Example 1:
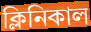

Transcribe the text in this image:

ক্লিনিকাল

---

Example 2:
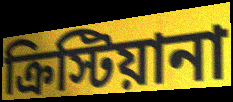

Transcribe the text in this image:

ক্রিস্টিয়ানা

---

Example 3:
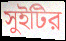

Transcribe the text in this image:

সুইটির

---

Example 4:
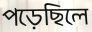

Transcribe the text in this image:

পড়েছিলে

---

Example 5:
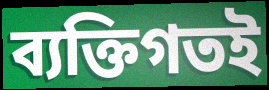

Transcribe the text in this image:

ব্যক্তিগতই